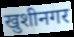
खुशीनगर